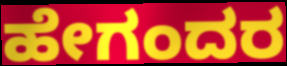
ಹೇಗಂದರ